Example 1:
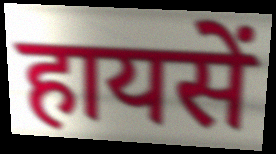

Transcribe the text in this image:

हायसें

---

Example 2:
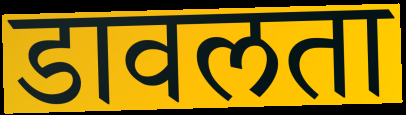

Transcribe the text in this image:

डावलता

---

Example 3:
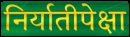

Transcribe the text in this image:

निर्यातीपेक्षा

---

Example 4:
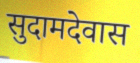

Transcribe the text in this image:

सुदामदेवास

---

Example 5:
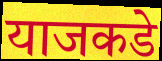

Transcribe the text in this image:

याजकडे